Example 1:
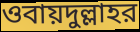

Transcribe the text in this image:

ওবায়দুল্লাহর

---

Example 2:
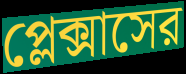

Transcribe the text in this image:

প্লেক্সাসের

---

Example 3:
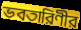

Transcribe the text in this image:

ভবতারিণীর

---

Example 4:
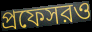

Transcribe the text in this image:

প্রফেসরও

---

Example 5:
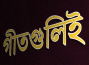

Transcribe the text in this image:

গীতগুলিই